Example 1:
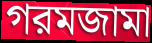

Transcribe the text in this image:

গরমজামা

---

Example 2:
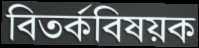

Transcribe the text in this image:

বিতর্কবিষয়ক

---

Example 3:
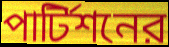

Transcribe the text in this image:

পার্টিশনের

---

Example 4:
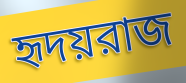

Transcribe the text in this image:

হৃদয়রাজ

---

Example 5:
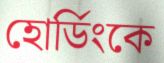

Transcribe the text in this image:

হোর্ডিংকে